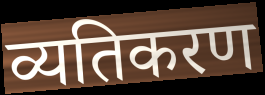
व्यतिकरण